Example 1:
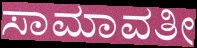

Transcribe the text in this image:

ಸಾಮಾವತೀ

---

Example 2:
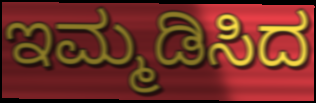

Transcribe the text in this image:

ಇಮ್ಮಡಿಸಿದ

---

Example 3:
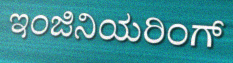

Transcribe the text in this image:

ಇಂಜಿನಿಯರಿಂಗ್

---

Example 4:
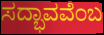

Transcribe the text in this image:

ಸದ್ಭಾವವೆಂಬ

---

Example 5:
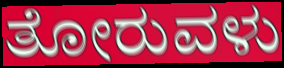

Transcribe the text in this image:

ತೋರುವಳು